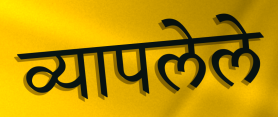
व्यापलेले